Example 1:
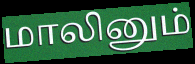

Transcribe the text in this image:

மாலினும்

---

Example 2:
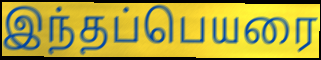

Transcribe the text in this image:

இந்தப்பெயரை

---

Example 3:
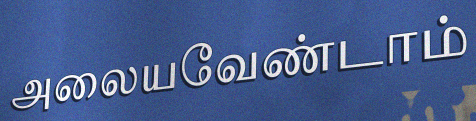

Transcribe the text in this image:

அலையவேண்டாம்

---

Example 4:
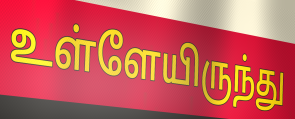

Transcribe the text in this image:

உள்ளேயிருந்து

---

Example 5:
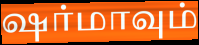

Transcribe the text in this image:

ஷர்மாவும்